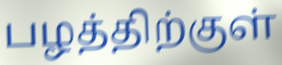
பழத்திற்குள்